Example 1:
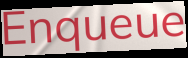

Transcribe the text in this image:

Enqueue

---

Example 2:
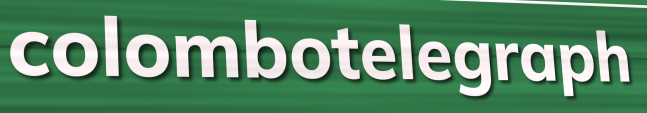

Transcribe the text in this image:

colombotelegraph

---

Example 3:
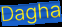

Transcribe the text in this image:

Dagha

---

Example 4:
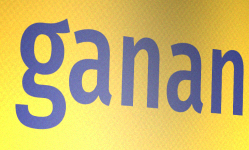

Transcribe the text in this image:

ganan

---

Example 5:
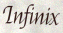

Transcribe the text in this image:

Infinix